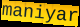
maniyar